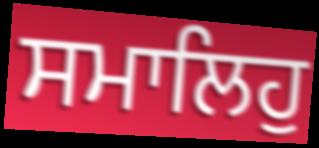
ਸਮਾਲਿਹੁ